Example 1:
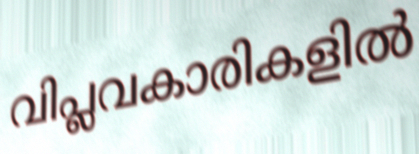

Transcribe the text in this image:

വിപ്ലവകാരികളിൽ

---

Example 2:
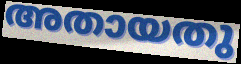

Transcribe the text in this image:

അതായതു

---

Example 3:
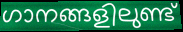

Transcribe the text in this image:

ഗാനങ്ങളിലുണ്ട്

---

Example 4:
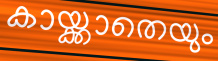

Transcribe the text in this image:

കായ്ക്കാതെയും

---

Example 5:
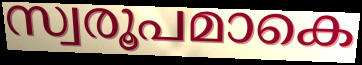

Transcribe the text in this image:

സ്വരൂപമാകെ